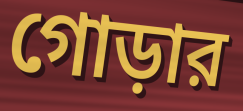
গোড়ার